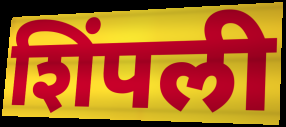
शिंपली